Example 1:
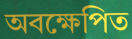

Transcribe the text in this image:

অবক্ষেপিত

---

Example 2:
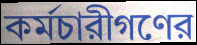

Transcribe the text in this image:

কর্মচারীগণের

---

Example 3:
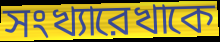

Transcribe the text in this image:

সংখ্যারেখাকে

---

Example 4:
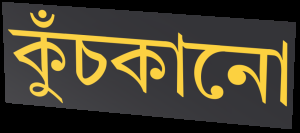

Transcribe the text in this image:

কুঁচকানো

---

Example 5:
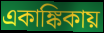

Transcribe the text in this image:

একাঙ্কিকায়